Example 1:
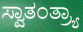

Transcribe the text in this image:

ಸ್ವಾತಂತ್ರ್ಯಾ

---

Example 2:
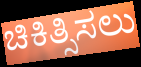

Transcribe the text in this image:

ಚಿಕಿತ್ಸಿಸಲು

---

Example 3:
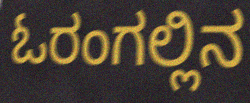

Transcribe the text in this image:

ಓರಂಗಲ್ಲಿನ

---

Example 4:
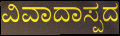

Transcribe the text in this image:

ವಿವಾದಾಸ್ಪದ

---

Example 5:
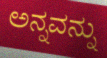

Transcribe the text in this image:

ಅನ್ನವನ್ನು